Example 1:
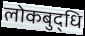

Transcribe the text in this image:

लोकबुद्धि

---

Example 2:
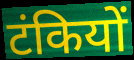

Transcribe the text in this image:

टंकियों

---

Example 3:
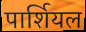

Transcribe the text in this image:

पार्शियल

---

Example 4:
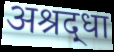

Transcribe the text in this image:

अश्रद्धा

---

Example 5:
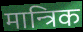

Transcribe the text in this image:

मान्त्रिक